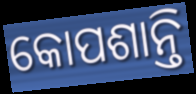
କୋପଶାନ୍ତି